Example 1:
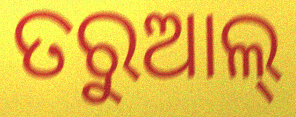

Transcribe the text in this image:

ତରୁଆଲ୍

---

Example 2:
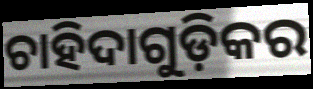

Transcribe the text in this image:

ଚାହିଦାଗୁଡ଼ିକର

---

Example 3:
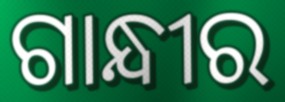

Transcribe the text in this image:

ଗାନ୍ଧୀର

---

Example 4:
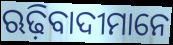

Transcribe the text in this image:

ଋଢ଼ିବାଦୀମାନେ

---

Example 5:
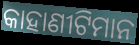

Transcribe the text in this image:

କାହାଣୀଟିମାନ